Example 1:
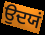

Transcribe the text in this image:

ਉਦਯਂ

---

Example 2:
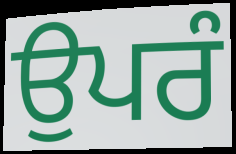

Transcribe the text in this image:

ਉਪਰੰ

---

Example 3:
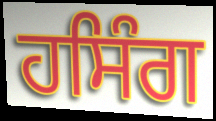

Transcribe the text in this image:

ਹਸਿੰਗ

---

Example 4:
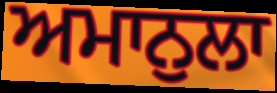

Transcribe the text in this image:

ਅਮਾਨੁਲਾ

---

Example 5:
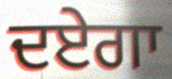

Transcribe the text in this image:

ਦਏਗਾ